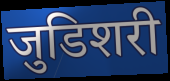
जुडिशरी